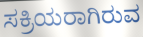
ಸಕ್ರಿಯರಾಗಿರುವ